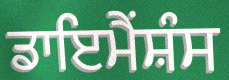
ਡਾਇਮੈਂਸ਼ੰਸ